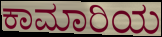
ಕಾಮಾರಿಯ